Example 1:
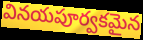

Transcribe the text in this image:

వినయపూర్వకమైన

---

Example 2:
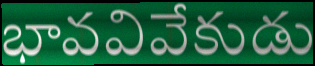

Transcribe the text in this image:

భావవివేకుడు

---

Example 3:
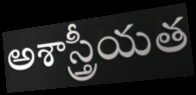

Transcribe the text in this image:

అశాస్త్రీయత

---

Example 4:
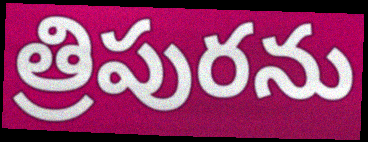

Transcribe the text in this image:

త్రిపురను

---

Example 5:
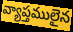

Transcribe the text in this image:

వ్యాప్తములైన